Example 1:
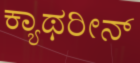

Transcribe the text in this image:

ಕ್ಯಾಥರೀನ್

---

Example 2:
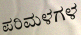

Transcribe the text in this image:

ಪರಿಮಳಗಳ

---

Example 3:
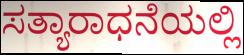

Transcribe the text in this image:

ಸತ್ಯಾರಾಧನೆಯಲ್ಲಿ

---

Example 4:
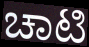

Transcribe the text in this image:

ಚಾಟಿ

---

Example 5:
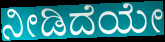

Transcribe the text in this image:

ನೀಡಿದೆಯೇ